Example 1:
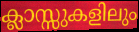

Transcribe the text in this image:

ക്ലാസ്സുകളിലും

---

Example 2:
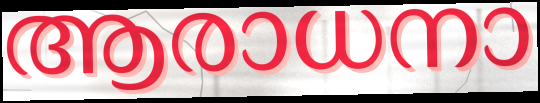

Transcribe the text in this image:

ആരാധനാ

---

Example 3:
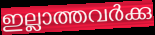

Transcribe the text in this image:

ഇല്ലാത്തവർക്കു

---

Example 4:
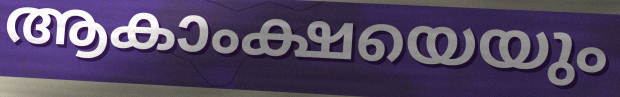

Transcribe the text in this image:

ആകാംക്ഷയെയും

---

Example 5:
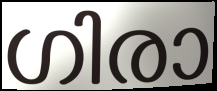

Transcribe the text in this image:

ഗിരാ